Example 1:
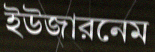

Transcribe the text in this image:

ইউজারনেম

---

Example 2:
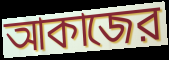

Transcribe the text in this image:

আকাজের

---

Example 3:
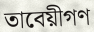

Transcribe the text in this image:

তাবেয়ীগণ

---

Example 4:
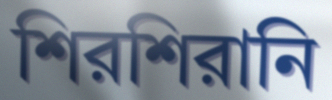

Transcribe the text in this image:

শিরশিরানি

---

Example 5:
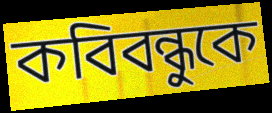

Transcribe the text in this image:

কবিবন্ধুকে